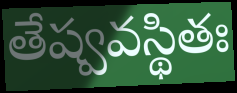
తేష్వవస్థితః